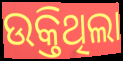
ଉକ୍ତିଥିଲା